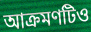
আক্রমণটিও